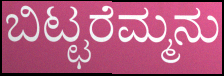
ಬಿಟ್ಟರೆಮ್ಮನು